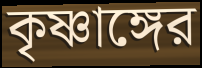
কৃষ্ণাঙ্গের